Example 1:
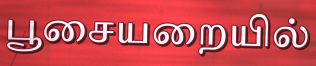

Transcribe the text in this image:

பூசையறையில்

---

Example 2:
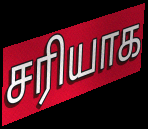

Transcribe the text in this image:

சரியாக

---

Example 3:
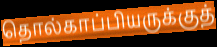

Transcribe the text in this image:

தொல்காப்பியருக்குத்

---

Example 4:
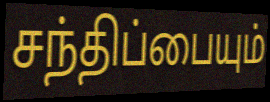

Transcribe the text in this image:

சந்திப்பையும்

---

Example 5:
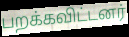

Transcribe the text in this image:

பறக்கவிட்டனர்